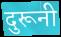
दुरूनी